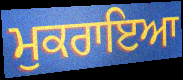
ਮੁਕਰਾਇਆ